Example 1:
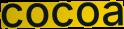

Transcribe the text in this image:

cocoa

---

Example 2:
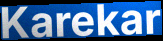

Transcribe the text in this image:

Karekar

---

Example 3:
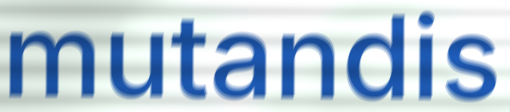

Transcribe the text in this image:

mutandis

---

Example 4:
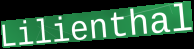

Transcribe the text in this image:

Lilienthal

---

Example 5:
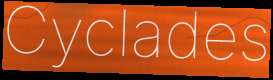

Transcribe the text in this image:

Cyclades